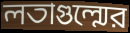
লতাগুল্মের